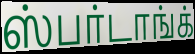
ஸ்பர்டாங்க்